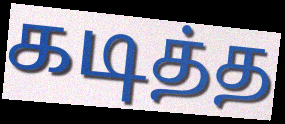
கடித்த